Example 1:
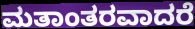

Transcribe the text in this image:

ಮತಾಂತರವಾದರೆ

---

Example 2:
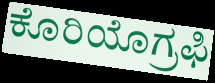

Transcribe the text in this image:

ಕೊರಿಯೊಗ್ರಫಿ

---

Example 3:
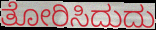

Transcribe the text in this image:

ತೋರಿಸಿದುದು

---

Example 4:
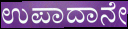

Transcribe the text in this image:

ಉಪಾದಾನೇ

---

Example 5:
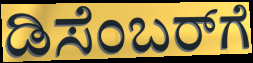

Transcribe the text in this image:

ಡಿಸೆಂಬರ್‌ಗೆ